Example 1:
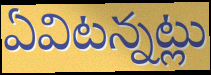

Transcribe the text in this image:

ఏవిటన్నట్లు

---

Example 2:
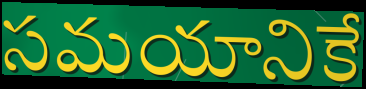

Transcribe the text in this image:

సమయానికే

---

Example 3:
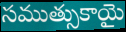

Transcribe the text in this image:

సముత్సుకాయై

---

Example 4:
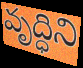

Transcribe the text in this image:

వృద్ధిని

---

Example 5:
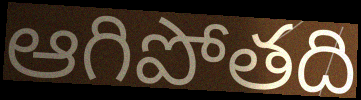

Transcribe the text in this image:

ఆగిపోతది